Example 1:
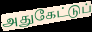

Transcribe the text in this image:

அதுகேட்டுப்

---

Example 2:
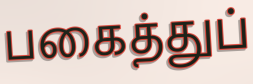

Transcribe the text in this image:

பகைத்துப்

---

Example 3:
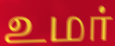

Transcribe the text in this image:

உமர்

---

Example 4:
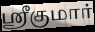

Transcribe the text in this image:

ஸ்ரீகுமார்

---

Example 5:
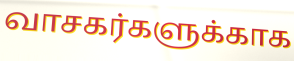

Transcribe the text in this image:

வாசகர்களுக்காக